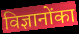
विज्ञानोंका